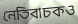
নেতিবাচকও